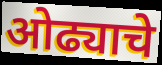
ओढ्याचे